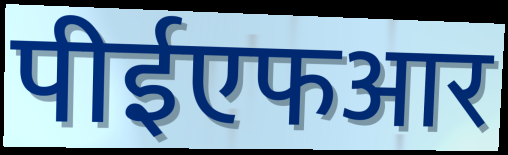
पीईएफआर